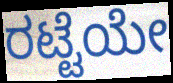
ರಟ್ಟೆಯೇ